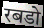
रबडो